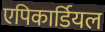
एपिकार्डियल